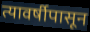
त्यावर्षीपासून